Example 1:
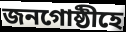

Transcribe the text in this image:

জনগোষ্ঠীহে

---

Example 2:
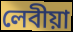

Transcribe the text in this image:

লেবীয়া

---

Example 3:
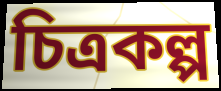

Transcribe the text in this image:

চিত্ৰকল্প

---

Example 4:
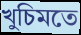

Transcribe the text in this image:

খুচিমতে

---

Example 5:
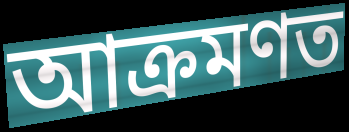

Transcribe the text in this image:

আক্ৰমণত